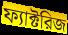
ফ্যাক্টরিজ